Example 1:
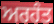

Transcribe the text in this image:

ਅਰਹੰਤ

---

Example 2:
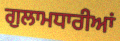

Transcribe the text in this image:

ਗੁਲਾਮਧਾਰੀਆਂ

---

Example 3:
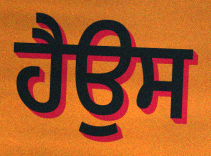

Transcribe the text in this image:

ਹੈਉਸ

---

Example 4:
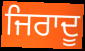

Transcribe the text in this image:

ਜਿਰਾਦੂ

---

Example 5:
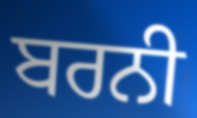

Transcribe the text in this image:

ਬਰਨੀ